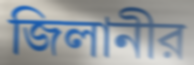
জিলানীর